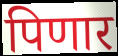
पिणार